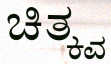
ಚಿತ್ಕ್ವ